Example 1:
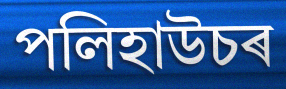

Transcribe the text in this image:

পলিহাউচৰ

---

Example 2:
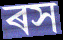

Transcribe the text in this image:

ৰস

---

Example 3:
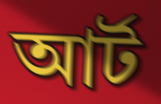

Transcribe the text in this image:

আৰ্ট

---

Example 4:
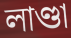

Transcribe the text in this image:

লাণ্ডা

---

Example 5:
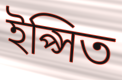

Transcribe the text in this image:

ইপ্সিত